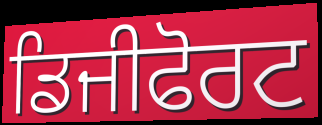
ਡਿਜੀਫੋਰਟ